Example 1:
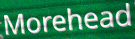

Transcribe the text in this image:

Morehead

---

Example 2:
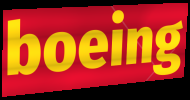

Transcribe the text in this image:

boeing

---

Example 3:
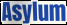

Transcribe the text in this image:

Asylum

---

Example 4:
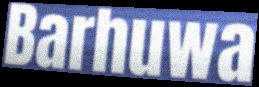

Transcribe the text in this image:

Barhuwa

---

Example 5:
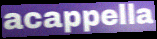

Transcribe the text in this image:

acappella